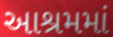
આશ્રમમાં